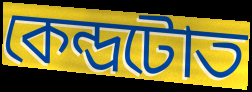
কেন্দ্ৰটোত